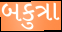
બકુત્રા